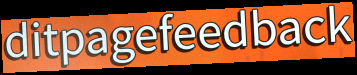
ditpagefeedback